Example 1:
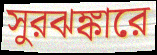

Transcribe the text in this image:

সুরঝঙ্কারে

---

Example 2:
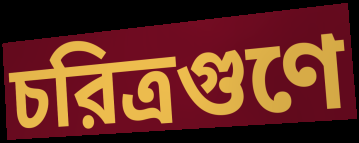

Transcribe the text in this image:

চরিত্রগুণে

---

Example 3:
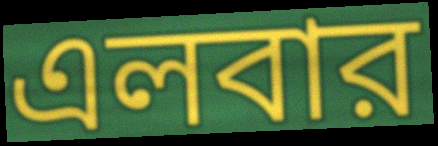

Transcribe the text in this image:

এলবার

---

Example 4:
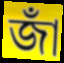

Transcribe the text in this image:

জাঁ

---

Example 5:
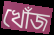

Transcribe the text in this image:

খোঁজ